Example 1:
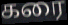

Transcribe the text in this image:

கரை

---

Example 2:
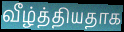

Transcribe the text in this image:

வீழ்த்தியதாக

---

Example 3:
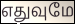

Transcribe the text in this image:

எதுவுமே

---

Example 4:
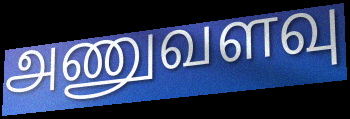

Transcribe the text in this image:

அணுவளவு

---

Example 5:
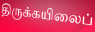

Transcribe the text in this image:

திருக்கயிலைப்